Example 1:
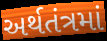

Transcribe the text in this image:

અર્થતંત્રમાં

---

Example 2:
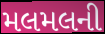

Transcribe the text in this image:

મલમલની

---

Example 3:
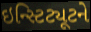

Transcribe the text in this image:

ઇન્સ્ટિટ્યૂટને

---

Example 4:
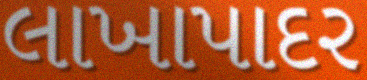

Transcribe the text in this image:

લાખાપાદર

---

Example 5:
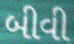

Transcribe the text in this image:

બીવી